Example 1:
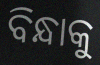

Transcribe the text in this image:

ବିନ୍ଧାକୁ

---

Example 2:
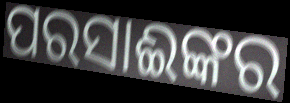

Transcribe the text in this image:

ପରସାଈଙ୍କର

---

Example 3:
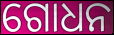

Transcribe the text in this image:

ଗୋଧନ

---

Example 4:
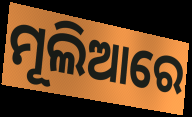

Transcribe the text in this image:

ମୂଲିଆରେ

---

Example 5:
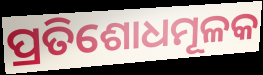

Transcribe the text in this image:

ପ୍ରତିଶୋଧମୂଳକ